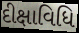
દીક્ષાવિધિ